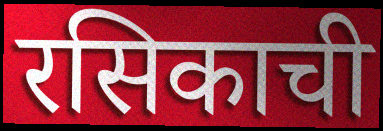
रसिकाची